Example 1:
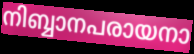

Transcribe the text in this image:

നിബ്ബാനപരായനാ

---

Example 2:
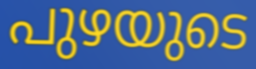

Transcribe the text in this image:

പുഴയുടെ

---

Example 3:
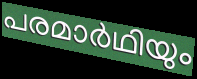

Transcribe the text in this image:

പരമാർഥിയും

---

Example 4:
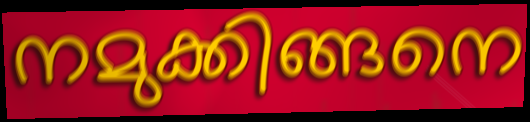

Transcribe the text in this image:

നമുക്കിങ്ങനെ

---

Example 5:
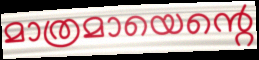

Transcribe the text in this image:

മാത്രമായെന്റെ